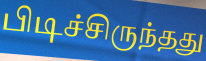
பிடிச்சிருந்தது